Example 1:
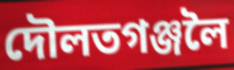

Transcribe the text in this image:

দৌলতগঞ্জলৈ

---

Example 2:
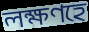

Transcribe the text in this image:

লক্ষণহে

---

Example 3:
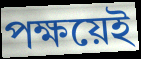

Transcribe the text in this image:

পক্ষয়েই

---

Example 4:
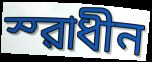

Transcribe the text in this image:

স্ৱাধীন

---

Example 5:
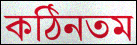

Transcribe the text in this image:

কঠিনতম